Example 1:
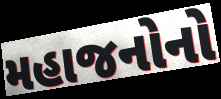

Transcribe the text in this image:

મહાજનોનો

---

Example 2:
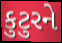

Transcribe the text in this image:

કુટુરને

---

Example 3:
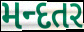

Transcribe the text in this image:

મન્દતર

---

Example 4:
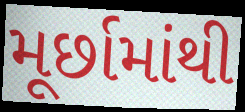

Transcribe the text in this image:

મૂર્છામાંથી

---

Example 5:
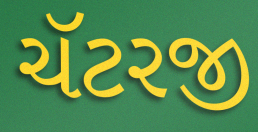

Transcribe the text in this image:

ચૅટરજી